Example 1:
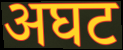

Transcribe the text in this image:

अघट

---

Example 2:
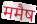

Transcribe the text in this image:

ममैष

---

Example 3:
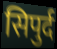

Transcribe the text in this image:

सिपुर्द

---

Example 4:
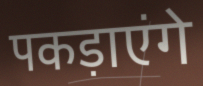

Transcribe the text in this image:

पकड़ाएंगे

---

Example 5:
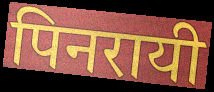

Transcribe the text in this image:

पिनरायी